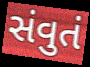
સંવુતં